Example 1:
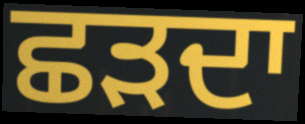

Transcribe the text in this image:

ਛੜਦਾ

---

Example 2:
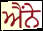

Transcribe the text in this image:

ਐਂਨੇ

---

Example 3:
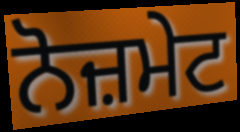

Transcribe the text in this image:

ਨੋਜ਼ਮੇਟ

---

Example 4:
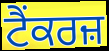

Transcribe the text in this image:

ਟੈਂਕਰਜ਼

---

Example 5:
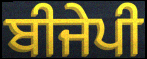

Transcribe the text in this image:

ਬੀਜੇਪੀ